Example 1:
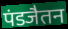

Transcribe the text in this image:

पंडजैतन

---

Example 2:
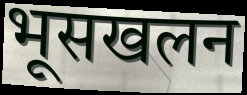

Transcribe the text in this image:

भूसखलन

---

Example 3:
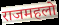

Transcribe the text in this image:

राजमहलो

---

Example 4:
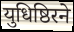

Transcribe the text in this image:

युधिष्ठिरने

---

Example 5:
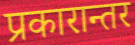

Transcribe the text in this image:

प्रकारान्तर